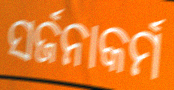
ସର୍ଜନାକର୍ମ